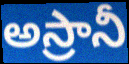
అస్రానీ